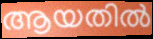
ആയതിൽ